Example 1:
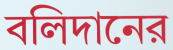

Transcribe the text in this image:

বলিদানের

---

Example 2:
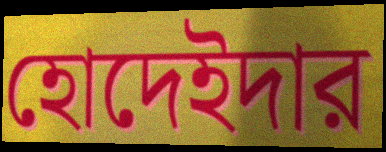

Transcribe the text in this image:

হোদেইদার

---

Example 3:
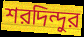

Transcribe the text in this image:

শরদিন্দুর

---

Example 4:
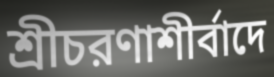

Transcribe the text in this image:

শ্রীচরণাশীর্বাদে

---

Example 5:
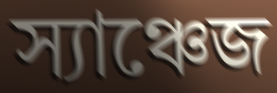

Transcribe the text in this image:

স্যাঞ্চেজ